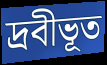
দ্রবীভূত